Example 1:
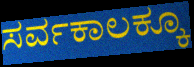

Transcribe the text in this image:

ಸರ್ವಕಾಲಕ್ಕೂ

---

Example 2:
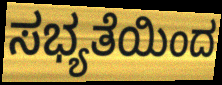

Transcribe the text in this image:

ಸಭ್ಯತೆಯಿಂದ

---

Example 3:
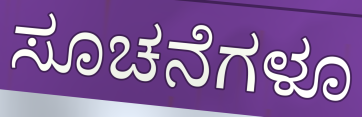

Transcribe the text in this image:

ಸೂಚನೆಗಳೂ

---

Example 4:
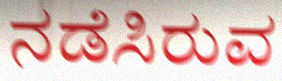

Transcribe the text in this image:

ನಡೆಸಿರುವ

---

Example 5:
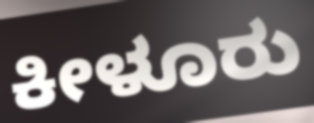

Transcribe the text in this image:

ಕೀಳೂರು